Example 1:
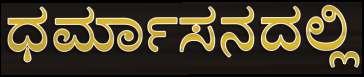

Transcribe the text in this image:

ಧರ್ಮಾಸನದಲ್ಲಿ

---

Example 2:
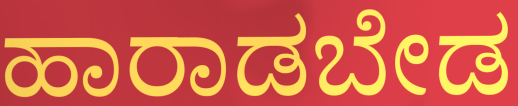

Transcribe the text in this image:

ಹಾರಾಡಬೇಡ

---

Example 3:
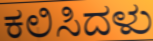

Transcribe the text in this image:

ಕಲಿಸಿದಳು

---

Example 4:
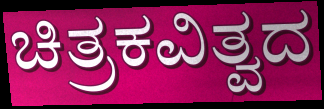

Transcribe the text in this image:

ಚಿತ್ರಕವಿತ್ವದ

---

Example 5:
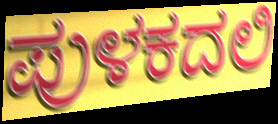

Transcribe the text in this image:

ಪುಳಕದಲಿ